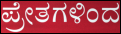
ಪ್ರೇತಗಳಿಂದ